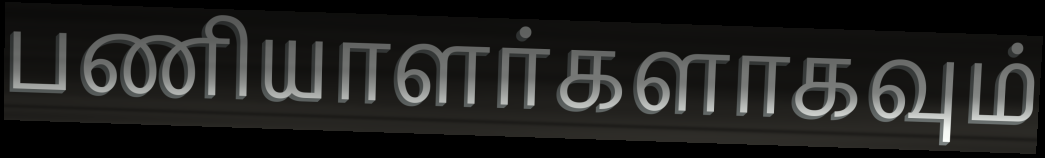
பணியாளர்களாகவும்